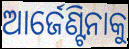
ଆର୍ଜେଣ୍ଟିନାକୁ